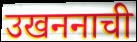
उखननाची